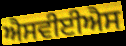
ਐਸਵੀਈਐਸ